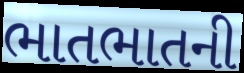
ભાતભાતની